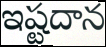
ఇష్టదాన